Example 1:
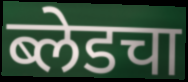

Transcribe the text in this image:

ब्लेडचा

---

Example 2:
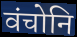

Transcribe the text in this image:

वंचोनि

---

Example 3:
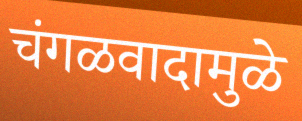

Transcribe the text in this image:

चंगळवादामुळे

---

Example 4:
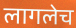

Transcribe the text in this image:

लागलेच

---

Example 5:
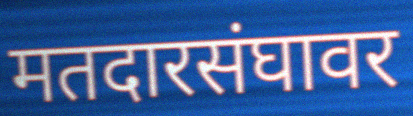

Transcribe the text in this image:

मतदारसंघावर